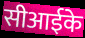
सीआईके